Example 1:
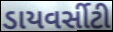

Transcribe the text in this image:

ડાયવર્સીટી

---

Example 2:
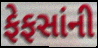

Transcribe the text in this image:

ફેફસાંની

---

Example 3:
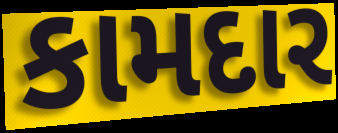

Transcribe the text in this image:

કામદાર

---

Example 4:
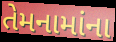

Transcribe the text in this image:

તેમનામાંના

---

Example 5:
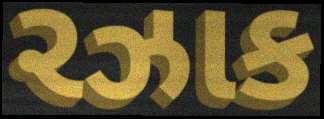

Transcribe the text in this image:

રઝાક